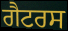
ਗੈਟਰਸ